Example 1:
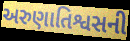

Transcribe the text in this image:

અરુણાતિશ્વસની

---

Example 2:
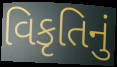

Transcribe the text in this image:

વિકૃતિનું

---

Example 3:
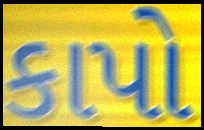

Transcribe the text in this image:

કાપો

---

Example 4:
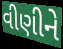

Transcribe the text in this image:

વીણીને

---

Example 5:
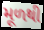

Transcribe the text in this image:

મૂળથી